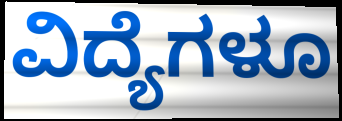
ವಿದ್ಯೆಗಳೂ